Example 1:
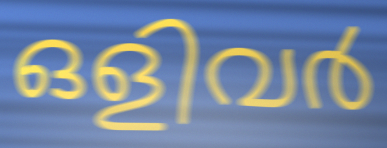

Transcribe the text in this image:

ഒളിവർ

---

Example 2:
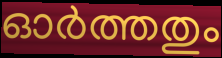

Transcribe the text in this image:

ഓർത്തതും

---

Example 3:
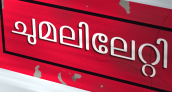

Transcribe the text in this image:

ചുമലിലേറ്റി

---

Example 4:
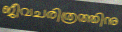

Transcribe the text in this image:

ജീവചരിത്രത്തിനു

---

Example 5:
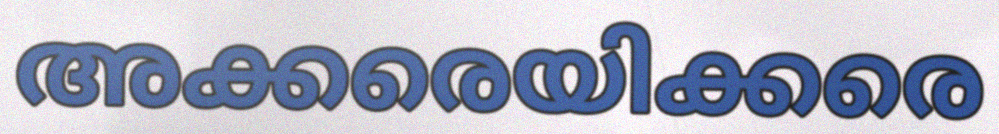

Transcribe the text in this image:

അക്കരെയിക്കരെ